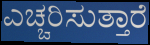
ಎಚ್ಚರಿಸುತ್ತಾರೆ